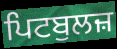
ਪਿਟਬੁਲਜ਼